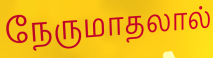
நேருமாதலால்